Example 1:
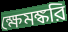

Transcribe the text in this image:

ক্ষেমঙ্করি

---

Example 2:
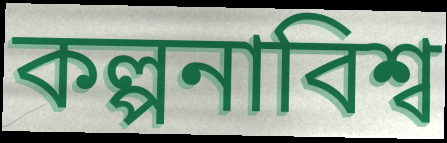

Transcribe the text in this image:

কল্পনাবিশ্ব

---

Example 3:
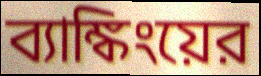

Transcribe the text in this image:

ব্যাঙ্কিংয়ের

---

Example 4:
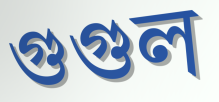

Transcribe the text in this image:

গুগুল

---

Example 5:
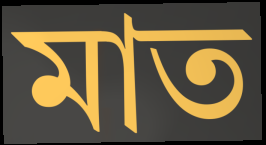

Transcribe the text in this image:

মাত